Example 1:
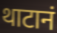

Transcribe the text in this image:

थाटानं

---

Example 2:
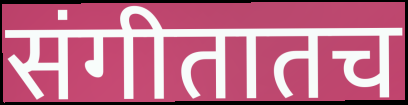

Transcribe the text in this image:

संगीतातच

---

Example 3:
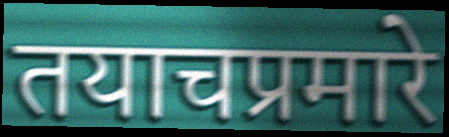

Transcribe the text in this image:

तयाचप्रमारे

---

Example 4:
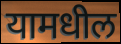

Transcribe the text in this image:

यामधील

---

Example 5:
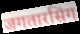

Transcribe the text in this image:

जगतारसिंग